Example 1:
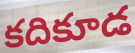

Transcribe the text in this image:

కదికూడ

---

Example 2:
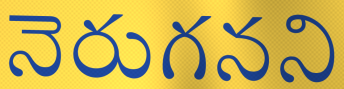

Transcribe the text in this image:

నెరుగనని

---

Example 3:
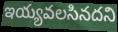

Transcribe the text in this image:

ఇయ్యవలసినదని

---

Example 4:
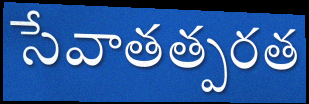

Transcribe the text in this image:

సేవాతత్పరత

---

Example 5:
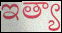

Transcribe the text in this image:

ఇత్యా